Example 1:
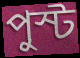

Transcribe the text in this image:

পুস্ট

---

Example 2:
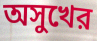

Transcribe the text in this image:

অসুখের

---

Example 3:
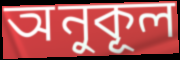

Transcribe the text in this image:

অনুকূল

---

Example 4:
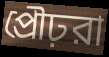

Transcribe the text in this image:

প্রৌঢ়রা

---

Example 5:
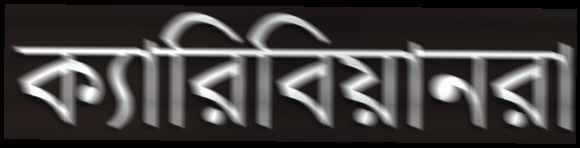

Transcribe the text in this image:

ক্যারিবিয়ানরা